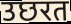
उछरत